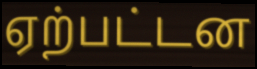
ஏற்பட்டன